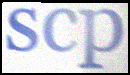
scp